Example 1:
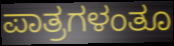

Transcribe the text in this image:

ಪಾತ್ರಗಳಂತೂ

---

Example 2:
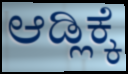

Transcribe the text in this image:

ಆಡ್ಲಿಕ್ಕೆ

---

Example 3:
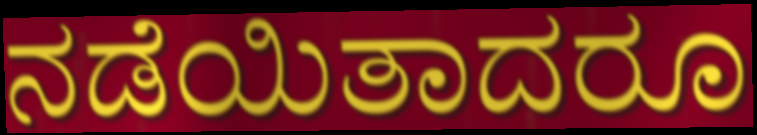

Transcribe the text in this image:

ನಡೆಯಿತಾದರೂ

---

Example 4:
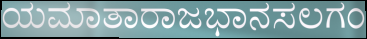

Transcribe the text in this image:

ಯಮಾತಾರಾಜಭಾನಸಲಗಂ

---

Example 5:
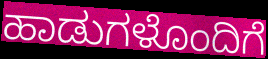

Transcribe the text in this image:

ಹಾಡುಗಳೊಂದಿಗೆ